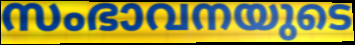
സംഭാവനയുടെ